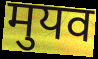
मुयव